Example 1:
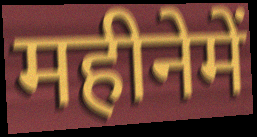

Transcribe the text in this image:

महीनेमें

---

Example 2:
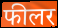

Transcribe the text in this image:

फीलर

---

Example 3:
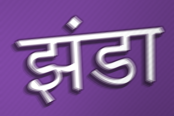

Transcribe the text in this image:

झंडा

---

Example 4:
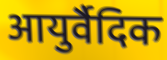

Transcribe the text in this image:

आयुर्वैदिक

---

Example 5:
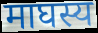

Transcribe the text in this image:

माघस्य